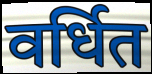
वर्धित